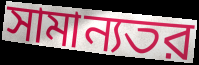
সামান্যতর